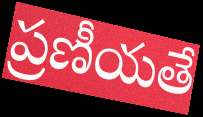
ప్రణీయతే